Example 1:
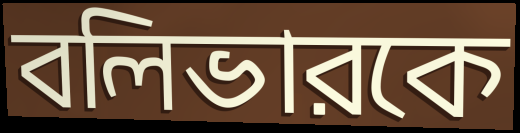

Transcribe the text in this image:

বলিভারকে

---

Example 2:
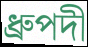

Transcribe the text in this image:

ধ্রুপদী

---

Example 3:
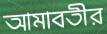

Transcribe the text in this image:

আমাবতীর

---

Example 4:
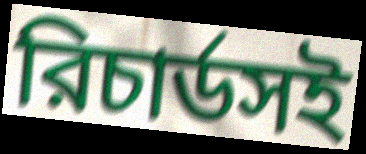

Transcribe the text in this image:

রিচার্ডসই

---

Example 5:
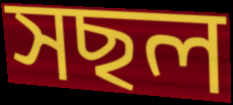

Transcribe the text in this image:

সছল